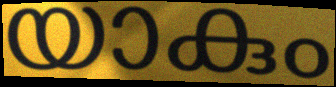
യാകും